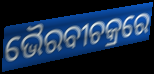
ଭୈରବୀଚକ୍ରରେ